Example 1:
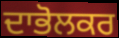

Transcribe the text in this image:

ਦਾਭੋਲਕਰ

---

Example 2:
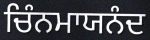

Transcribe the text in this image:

ਚਿੰਨਮਾਯਨੰਦ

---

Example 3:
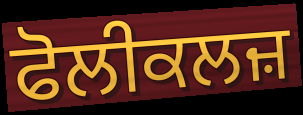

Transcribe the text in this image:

ਫੋਲੀਕਲਜ਼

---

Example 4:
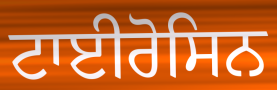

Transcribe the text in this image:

ਟਾਈਰੋਸਿਨ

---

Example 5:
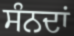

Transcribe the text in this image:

ਸੰਨਦਾਂ